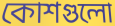
কোশগুলো